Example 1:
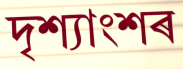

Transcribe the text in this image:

দৃশ্যাংশৰ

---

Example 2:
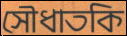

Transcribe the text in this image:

সৌধাতকি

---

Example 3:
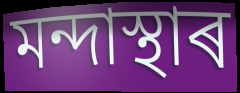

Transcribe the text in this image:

মন্দাস্থাৰ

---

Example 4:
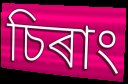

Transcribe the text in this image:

চিৰাং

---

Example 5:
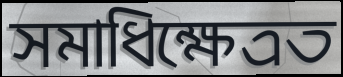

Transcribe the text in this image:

সমাধিক্ষেত্ৰত